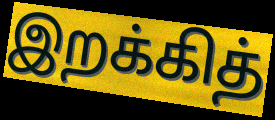
இறக்கித்